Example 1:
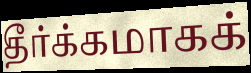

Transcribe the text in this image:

தீர்க்கமாகக்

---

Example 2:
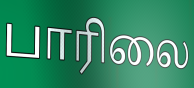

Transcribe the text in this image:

பாரிலை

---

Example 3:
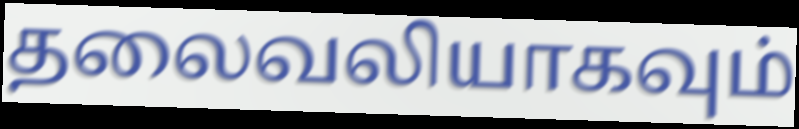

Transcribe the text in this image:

தலைவலியாகவும்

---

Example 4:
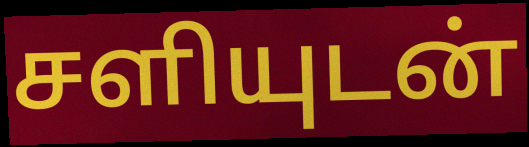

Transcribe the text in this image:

சளியுடன்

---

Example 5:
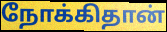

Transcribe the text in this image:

நோக்கிதான்